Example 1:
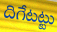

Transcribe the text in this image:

దిగేటట్టు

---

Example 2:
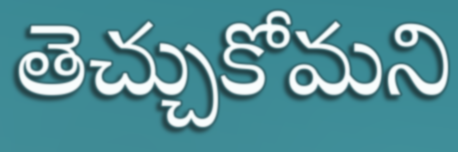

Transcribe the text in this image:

తెచ్చుకోమని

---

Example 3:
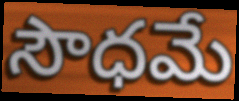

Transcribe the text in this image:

సౌధమే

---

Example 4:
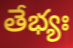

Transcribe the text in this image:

తేభ్యః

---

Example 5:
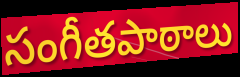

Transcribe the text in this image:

సంగీతపాఠాలు